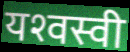
यश्वस्वी